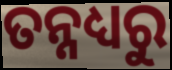
ତନ୍ନଧ୍ୟରୁ